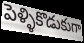
పెళ్ళికొడుకుగా